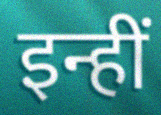
इन्हीं